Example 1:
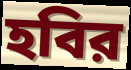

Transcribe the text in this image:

হবির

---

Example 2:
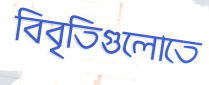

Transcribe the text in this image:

বিবৃতিগুলোতে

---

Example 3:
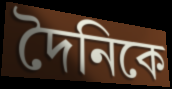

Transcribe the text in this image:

দৈনিকে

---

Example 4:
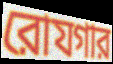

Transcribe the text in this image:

রোযগার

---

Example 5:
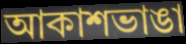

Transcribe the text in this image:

আকাশভাঙা